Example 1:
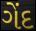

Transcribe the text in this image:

ગેંદ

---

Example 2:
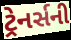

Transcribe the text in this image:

ટ્રેનર્સની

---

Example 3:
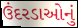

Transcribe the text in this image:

ઉંદરડાઓનું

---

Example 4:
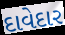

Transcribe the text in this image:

દાવેદાર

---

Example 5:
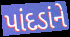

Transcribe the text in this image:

પાંદડાંને